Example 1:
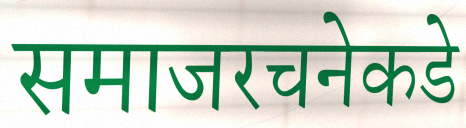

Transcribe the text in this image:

समाजरचनेकडे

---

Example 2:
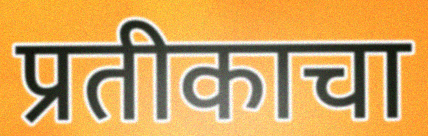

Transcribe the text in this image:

प्रतीकाचा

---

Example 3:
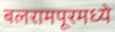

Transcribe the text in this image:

बलरामपूरमध्ये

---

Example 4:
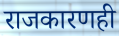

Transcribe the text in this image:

राजकारणही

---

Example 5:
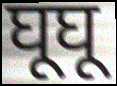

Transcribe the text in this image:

घूघू